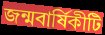
জন্মবার্ষিকীটি